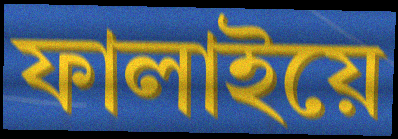
ফালাইয়ে